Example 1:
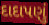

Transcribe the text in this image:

દાદાપણું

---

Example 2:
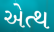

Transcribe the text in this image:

એત્થ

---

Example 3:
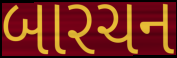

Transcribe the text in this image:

બારચન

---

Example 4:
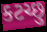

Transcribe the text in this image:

કટચ્છુ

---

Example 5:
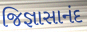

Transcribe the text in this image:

જિજ્ઞાસાનંદ